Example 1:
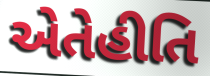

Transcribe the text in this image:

એતેહીતિ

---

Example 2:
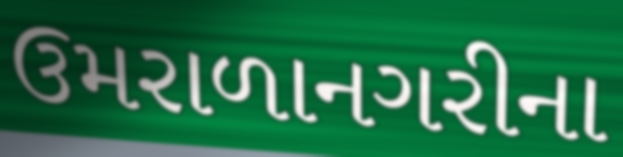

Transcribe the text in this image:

ઉમરાળાનગરીના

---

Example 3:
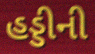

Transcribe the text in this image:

હડ્ડીની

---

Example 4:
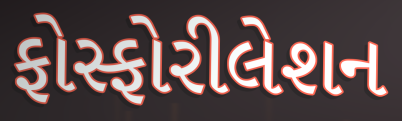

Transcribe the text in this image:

ફોસ્ફોરીલેશન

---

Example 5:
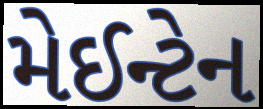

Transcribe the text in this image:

મેઈન્ટેન